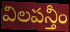
విలపన్తీం